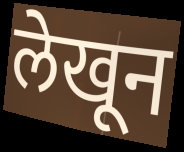
लेखून